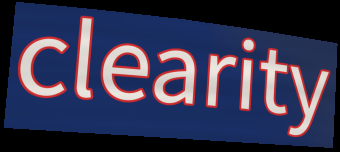
clearity